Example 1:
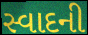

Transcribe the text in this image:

સ્વાદની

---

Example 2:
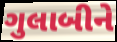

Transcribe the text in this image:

ગુલાબીને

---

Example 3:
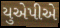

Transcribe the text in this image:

યુએપીએ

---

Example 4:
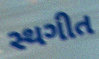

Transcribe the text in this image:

સ્થગીત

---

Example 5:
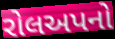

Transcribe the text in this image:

રોલઅપનો